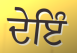
ਦੇਇੰ